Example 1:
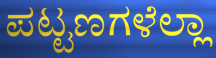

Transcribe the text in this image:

ಪಟ್ಟಣಗಳೆಲ್ಲಾ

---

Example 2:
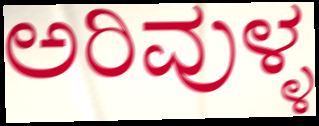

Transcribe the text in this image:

ಅರಿವುಳ್ಳ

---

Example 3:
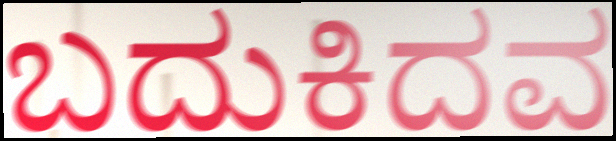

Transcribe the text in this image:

ಬದುಕಿದವ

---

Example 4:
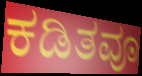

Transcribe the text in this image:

ಕಡಿತವೂ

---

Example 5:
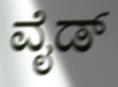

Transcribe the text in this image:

ವೈಡ್